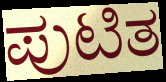
ಪುಟಿತ